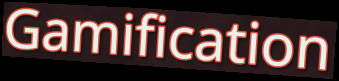
Gamification